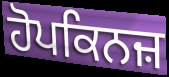
ਹੋਪਕਿਨਜ਼